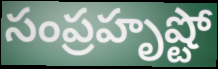
సంప్రహృష్టో